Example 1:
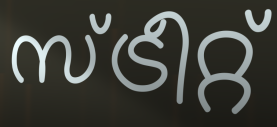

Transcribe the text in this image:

സ്ട്രീറ്റ്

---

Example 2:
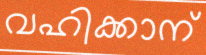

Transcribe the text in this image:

വഹിക്കാന്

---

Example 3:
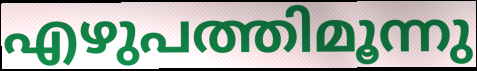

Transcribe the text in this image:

എഴുപത്തിമൂന്നു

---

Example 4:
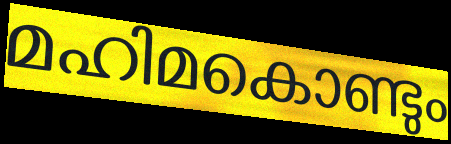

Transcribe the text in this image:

മഹിമകൊണ്ടും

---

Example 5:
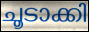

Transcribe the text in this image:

ചൂടാക്കി